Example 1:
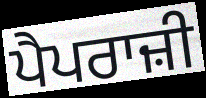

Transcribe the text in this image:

ਪੈਪਰਾਜ਼ੀ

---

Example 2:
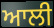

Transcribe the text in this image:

ਆਲੀ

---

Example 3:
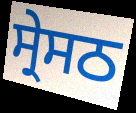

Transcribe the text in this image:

ਸ੍ਰੇਸਠ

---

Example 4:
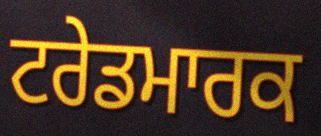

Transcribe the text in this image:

ਟਰੇਡਮਾਰਕ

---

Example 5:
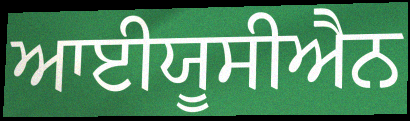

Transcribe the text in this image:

ਆਈਯੂਸੀਐਨ